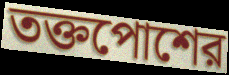
তক্তপোশের